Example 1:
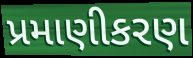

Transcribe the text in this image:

પ્રમાણીકરણ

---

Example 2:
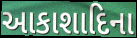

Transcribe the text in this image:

આકાશાદિના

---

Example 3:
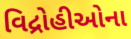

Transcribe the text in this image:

વિદ્રોહીઓના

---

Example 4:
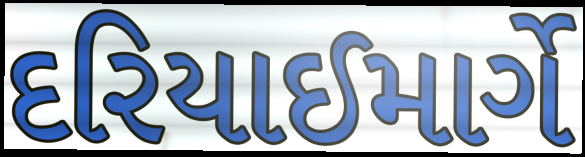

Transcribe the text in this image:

દરિયાઈમાર્ગે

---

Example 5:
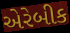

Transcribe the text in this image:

એરેબીક